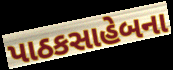
પાઠકસાહેબના